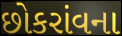
છોકરાંવના